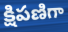
క్షిపణిగా